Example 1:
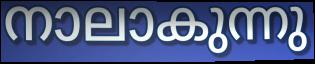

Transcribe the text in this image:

നാലാകുന്നു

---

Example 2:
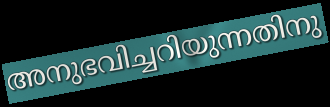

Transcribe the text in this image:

അനുഭവിച്ചറിയുന്നതിനു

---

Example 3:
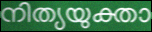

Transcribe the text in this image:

നിത്യയുക്താ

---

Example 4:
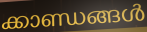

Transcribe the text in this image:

ക്കാണ്ഡങ്ങൾ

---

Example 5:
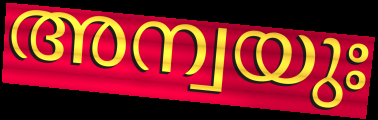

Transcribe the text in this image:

അന്വയുഃ